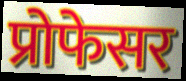
प्रोफेसर